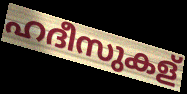
ഹദീസുകള്